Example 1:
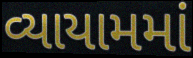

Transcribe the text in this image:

વ્યાયામમાં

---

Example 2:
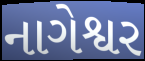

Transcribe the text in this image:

નાગેશ્વર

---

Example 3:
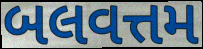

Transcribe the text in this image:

બલવત્તમ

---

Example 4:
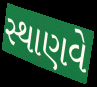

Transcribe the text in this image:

સ્થાણવે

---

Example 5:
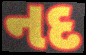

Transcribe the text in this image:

નદ